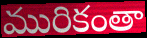
మురికంతా